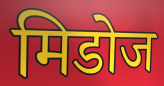
मिडोज